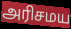
அரிசமய